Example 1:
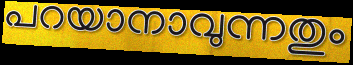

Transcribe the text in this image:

പറയാനാവുന്നതും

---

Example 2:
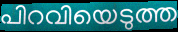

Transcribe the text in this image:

പിറവിയെടുത്ത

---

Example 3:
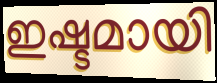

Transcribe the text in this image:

ഇഷ്ടമായി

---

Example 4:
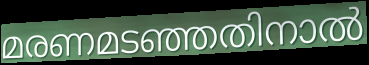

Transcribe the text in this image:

മരണമടഞ്ഞതിനാൽ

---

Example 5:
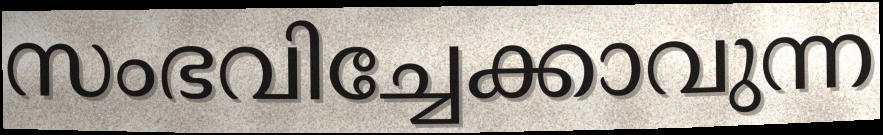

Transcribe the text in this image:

സംഭവിച്ചേക്കാവുന്ന